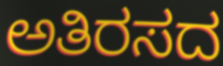
ಅತಿರಸದ